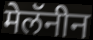
मेलॅनीन